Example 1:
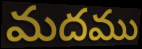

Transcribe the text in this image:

మదము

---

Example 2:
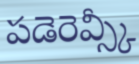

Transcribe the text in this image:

పడెరెవ్స్కీ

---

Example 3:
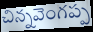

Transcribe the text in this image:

చిన్నవెంగప్ప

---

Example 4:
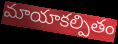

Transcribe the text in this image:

మాయాకల్పితం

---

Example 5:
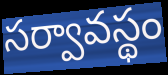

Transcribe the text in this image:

సర్వావస్థం